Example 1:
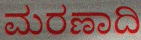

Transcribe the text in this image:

ಮರಣಾದಿ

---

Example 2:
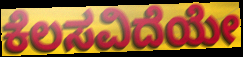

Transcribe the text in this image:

ಕೆಲಸವಿದೆಯೇ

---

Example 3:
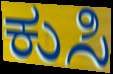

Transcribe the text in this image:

ಕುಸಿ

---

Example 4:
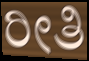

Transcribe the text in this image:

ರೀತಿ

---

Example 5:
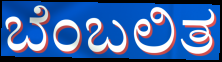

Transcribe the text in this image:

ಬೆಂಬಲಿತ